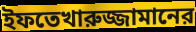
ইফতেখারুজ্জামানের